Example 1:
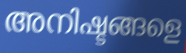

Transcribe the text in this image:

അനിഷ്ടങ്ങളെ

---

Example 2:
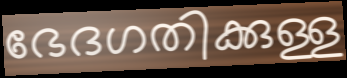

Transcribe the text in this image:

ഭേദഗതിക്കുള്ള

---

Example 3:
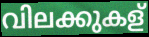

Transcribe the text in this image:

വിലക്കുകള്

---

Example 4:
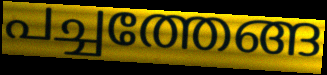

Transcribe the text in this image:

പച്ചത്തേങ്ങ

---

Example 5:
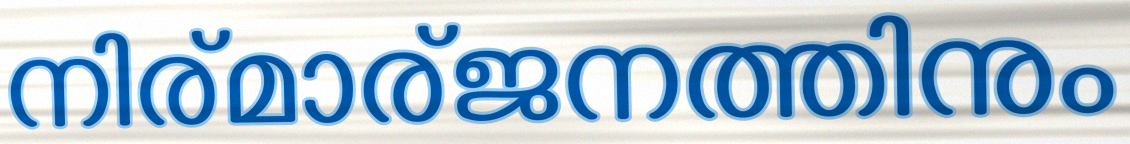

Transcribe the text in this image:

നിര്മാര്ജനത്തിനും